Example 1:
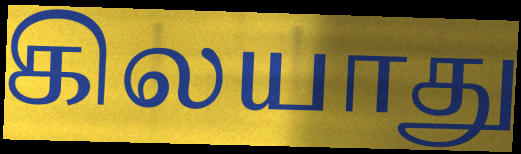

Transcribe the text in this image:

கிலயாது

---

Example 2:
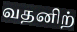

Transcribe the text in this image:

வதனிற்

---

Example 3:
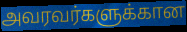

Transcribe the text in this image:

அவரவர்களுக்கான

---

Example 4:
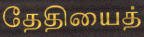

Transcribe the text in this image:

தேதியைத்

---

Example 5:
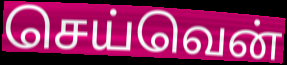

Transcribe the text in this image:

செய்வென்